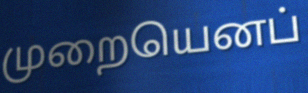
முறையெனப்